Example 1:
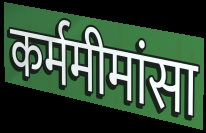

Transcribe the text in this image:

कर्ममीमांसा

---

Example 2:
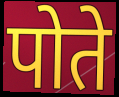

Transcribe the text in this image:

पोते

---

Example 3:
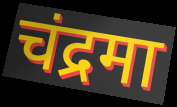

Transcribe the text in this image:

चंद्रमा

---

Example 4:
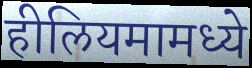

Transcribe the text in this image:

हीलियमामध्ये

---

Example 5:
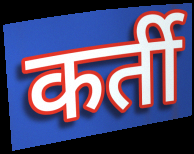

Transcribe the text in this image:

कर्ती